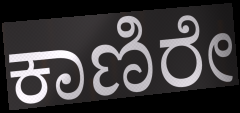
ಕಾಣಿರೇ